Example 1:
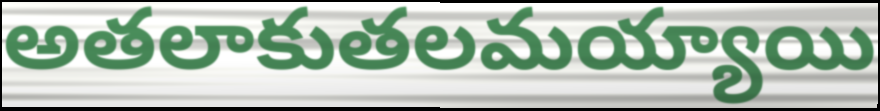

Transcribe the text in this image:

అతలాకుతలమయ్యాయి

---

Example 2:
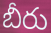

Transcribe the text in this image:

బీరు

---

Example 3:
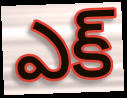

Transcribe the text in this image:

ఎక్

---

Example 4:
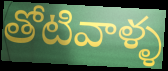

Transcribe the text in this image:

తోటివాళ్ళ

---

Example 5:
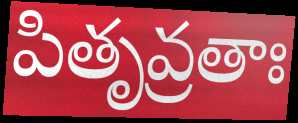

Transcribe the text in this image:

పితృవ్రతాః